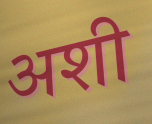
अशी